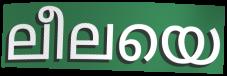
ലീലയെ